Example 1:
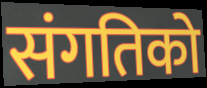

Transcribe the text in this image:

संगतिको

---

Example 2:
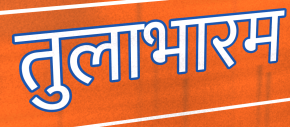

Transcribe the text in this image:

तुलाभारम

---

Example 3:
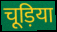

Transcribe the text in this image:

चूड़िया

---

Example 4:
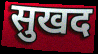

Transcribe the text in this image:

सुखद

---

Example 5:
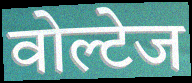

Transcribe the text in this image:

वोल्टेज